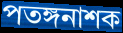
পতঙ্গনাশক